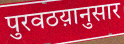
पुरवठय़ानुसार